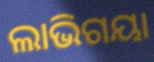
ଲାଭିଗୟା